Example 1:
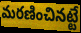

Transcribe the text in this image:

మరణించినట్టే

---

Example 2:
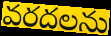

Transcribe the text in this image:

వరదలను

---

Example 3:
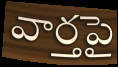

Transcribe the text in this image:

వార్తపై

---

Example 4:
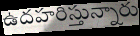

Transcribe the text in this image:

ఉదహరిస్తున్నారు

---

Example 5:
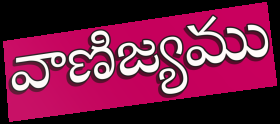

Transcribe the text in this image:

వాణిజ్యము